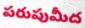
పరుపుమీద